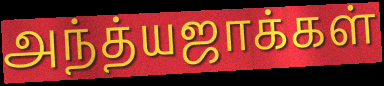
அந்த்யஜாக்கள்